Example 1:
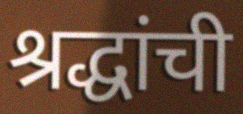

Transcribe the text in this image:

श्रद्धांची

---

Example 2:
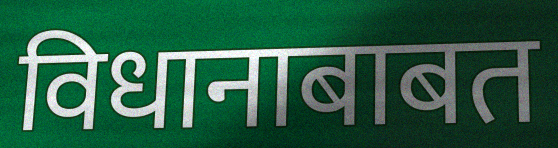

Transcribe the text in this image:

विधानाबाबत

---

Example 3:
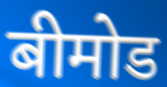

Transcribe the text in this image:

बीमोड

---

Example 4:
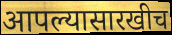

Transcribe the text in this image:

आपल्यासारखीच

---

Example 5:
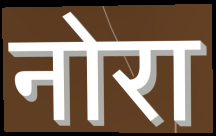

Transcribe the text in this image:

नोरा